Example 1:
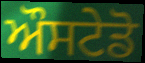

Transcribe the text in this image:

ਔਸਟੇਡੋ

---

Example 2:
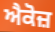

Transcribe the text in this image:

ਐਕੋਜ਼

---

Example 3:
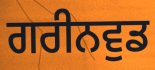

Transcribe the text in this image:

ਗਰੀਨਵੁਡ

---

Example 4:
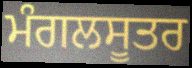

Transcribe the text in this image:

ਮੰਗਲਸੂਤਰ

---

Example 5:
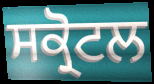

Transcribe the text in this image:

ਸਕ੍ਰੋਟਲ